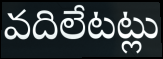
వదిలేటట్లు